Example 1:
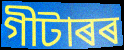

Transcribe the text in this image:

গীটাৰৰ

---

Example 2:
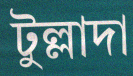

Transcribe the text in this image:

টুল্লাদা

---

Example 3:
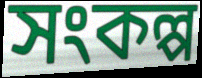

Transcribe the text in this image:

সংকল্প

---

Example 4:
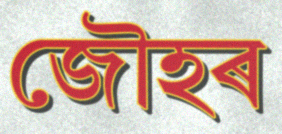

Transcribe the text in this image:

জৌহৰ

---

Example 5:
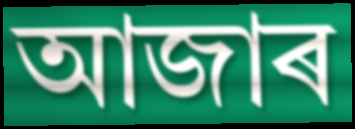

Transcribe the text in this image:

আজাৰ